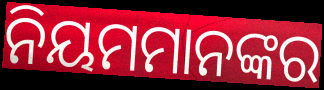
ନିୟମମାନଙ୍କର